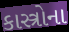
કાસ્ત્રોના